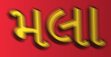
મલા